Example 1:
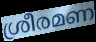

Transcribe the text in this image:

ശ്രീരമണ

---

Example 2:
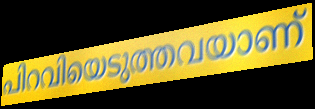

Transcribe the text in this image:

പിറവിയെടുത്തവയാണ്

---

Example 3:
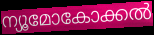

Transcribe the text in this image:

ന്യൂമോകോക്കൽ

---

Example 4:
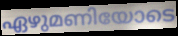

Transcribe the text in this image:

ഏഴുമണിയോടെ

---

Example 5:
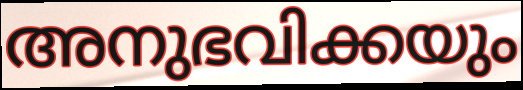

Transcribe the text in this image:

അനുഭവിക്കയും